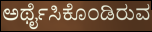
ಅರ್ಥೈಸಿಕೊಂಡಿರುವ